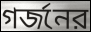
গর্জনের